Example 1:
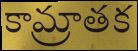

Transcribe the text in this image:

కామ్రాతక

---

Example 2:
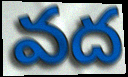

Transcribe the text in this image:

వద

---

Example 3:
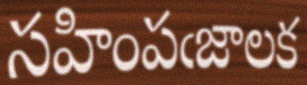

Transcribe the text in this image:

సహింపఁజాలక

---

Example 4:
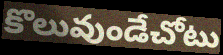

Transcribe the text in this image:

కొలువుండేచోటు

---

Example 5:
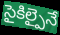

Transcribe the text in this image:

సైకిల్పైనే